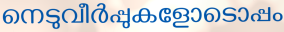
നെടുവീർപ്പുകളോടൊപ്പം